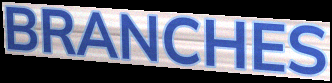
BRANCHES